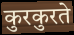
कुरकुरते